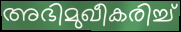
അഭിമുഖീകരിച്ച്